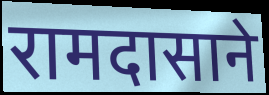
रामदासाने